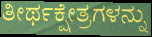
ತೀರ್ಥಕ್ಷೇತ್ರಗಳನ್ನು